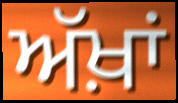
ਅੱਖ਼ਾਂ